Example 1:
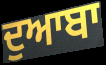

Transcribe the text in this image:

ਦੁਆਬਾ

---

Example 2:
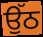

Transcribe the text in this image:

ਉੱਠ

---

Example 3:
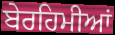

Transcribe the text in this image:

ਬੇਰਹਿਮੀਆਂ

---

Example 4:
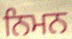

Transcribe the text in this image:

ਨਿਮਨ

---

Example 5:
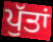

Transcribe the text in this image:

ਪੁੱਤਾਂ